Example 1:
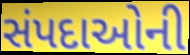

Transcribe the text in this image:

સંપદાઓની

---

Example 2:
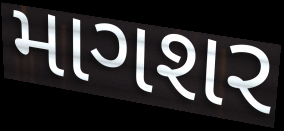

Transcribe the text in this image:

માગશર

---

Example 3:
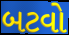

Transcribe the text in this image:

બટવો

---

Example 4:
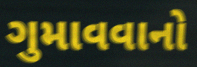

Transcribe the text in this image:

ગુમાવવાનો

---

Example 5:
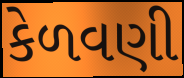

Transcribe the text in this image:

કેળવણી